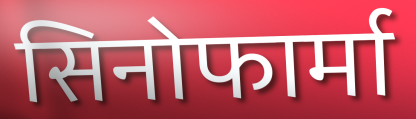
सिनोफार्मा